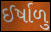
ઈર્ષાળુ